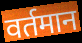
वर्तमान